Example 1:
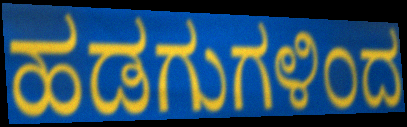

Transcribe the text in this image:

ಹಡಗುಗಳಿಂದ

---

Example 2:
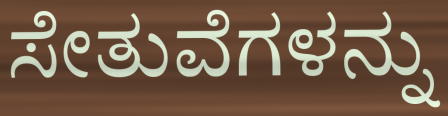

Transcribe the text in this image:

ಸೇತುವೆಗಳನ್ನು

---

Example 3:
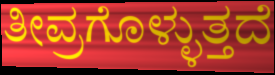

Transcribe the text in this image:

ತೀವ್ರಗೊಳ್ಳುತ್ತದೆ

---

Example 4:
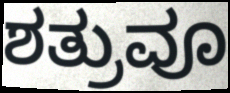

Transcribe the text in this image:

ಶತ್ರುವೂ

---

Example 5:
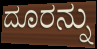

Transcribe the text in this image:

ದೂರನ್ನು